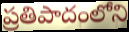
ప్రతిపాదంలోని